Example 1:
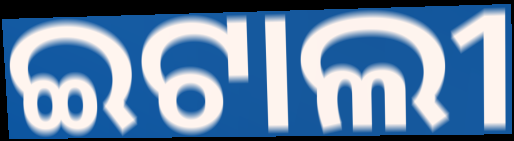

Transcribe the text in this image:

ଇଟାଲୀ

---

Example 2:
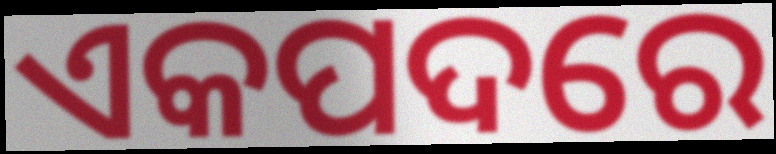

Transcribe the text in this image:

ଏକପଦରେ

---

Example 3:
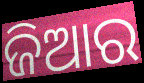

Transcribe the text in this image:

ଜିଆର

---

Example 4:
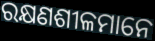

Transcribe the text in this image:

ରକ୍ଷଣଶୀଳମାନେ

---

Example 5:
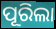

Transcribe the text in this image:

ପୂରିଲା